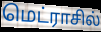
மெட்ராசில்